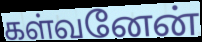
கள்வனேன்